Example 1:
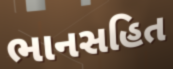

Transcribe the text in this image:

ભાનસહિત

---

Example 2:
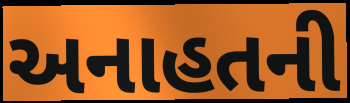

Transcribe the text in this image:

અનાહતની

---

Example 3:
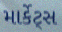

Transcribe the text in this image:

માર્કેટ્સ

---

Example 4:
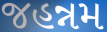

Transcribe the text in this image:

જહન્નમ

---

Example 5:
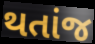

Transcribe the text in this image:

થતાંજ